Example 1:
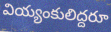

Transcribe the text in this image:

వియ్యంకులిద్దరూ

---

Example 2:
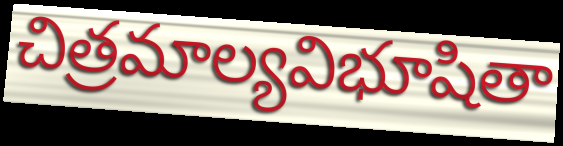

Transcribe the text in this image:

చిత్రమాల్యవిభూషితా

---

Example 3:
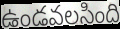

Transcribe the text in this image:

ఉండవలసింది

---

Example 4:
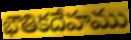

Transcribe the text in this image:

భౌతికదేహము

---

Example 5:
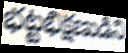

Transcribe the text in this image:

భట్టభిక్షణుడిని